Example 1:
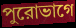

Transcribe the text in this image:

পুরোভাগে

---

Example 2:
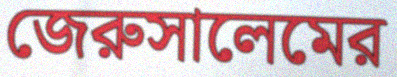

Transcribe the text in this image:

জেরুসালেমের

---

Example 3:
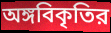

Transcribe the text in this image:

অঙ্গবিকৃতির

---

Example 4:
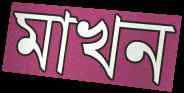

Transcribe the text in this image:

মাখন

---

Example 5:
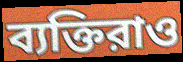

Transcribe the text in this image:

ব্যক্তিরাও